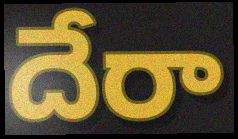
దేరా